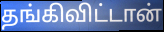
தங்கிவிட்டான்